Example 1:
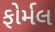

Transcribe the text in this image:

ફોર્મલ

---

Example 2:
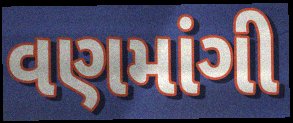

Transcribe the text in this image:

વણમાંગી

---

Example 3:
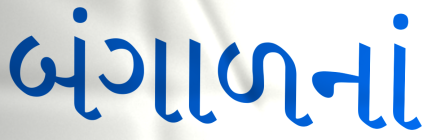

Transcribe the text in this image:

બંગાળનાં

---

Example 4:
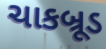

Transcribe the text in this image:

ચાકબ્રૂડ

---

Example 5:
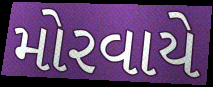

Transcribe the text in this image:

મોરવાયે